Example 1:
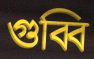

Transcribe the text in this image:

গুব্বি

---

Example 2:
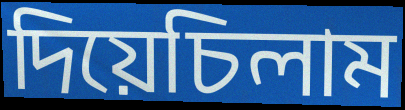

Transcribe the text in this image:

দিয়েচিলাম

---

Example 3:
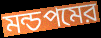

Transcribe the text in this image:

মন্ডপমের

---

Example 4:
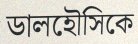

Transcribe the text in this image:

ডালহৌসিকে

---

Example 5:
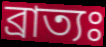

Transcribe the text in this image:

ব্রাত্যঃ